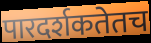
पारदर्शकतेतच